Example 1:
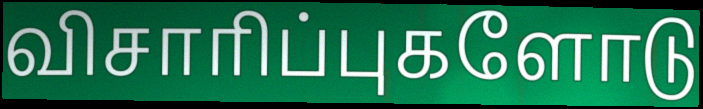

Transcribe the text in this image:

விசாரிப்புகளோடு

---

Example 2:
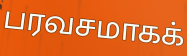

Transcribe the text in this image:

பரவசமாகக்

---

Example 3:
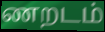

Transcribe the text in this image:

ணறடம்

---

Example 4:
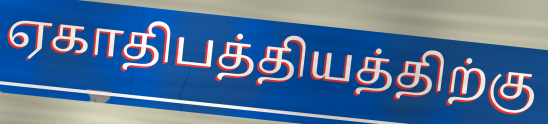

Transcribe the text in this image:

ஏகாதிபத்தியத்திற்கு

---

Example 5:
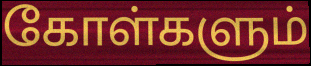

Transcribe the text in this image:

கோள்களும்